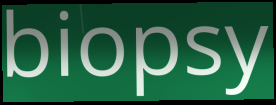
biopsy